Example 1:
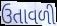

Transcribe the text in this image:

ઉતાવળી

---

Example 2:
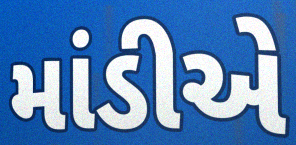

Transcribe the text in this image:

માંડીએ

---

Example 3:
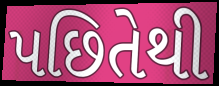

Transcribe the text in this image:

પછિતેથી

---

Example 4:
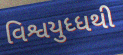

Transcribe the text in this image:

વિશ્વયુધ્ધથી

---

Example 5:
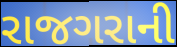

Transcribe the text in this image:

રાજગરાની